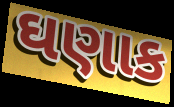
ઘણાક